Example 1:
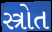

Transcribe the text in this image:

સ્ત્રોત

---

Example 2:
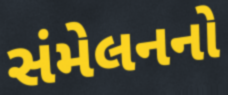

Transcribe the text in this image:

સંમેલનનો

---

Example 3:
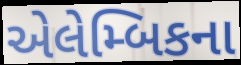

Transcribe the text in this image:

એલેમ્બિકના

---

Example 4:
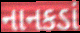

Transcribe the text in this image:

નાનકડાં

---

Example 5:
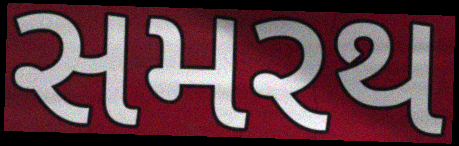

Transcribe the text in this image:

સમરથ